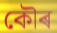
কৌৰ